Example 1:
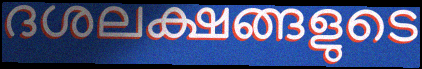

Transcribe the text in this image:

ദശലക്ഷങ്ങളുടെ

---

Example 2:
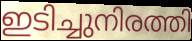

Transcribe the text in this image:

ഇടിച്ചുനിരത്തി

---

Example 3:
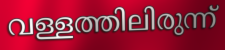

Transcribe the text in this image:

വള്ളത്തിലിരുന്ന്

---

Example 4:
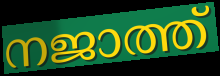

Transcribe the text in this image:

നജാത്ത്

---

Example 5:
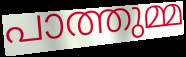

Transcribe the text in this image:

പാത്തുമ്മ